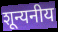
शून्यनीय